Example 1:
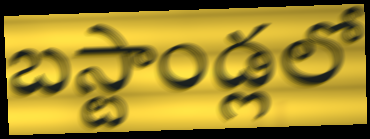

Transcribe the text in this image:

బస్టాండ్లలో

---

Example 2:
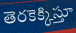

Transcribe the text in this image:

తెరకెక్కిస్తూ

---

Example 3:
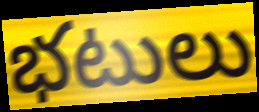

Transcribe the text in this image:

భటులు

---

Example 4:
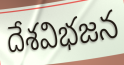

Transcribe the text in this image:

దేశవిభజన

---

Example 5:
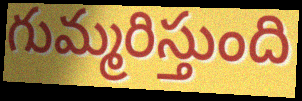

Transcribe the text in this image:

గుమ్మరిస్తుంది